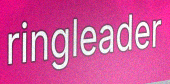
ringleader